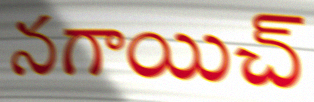
నగాయిచ్